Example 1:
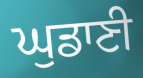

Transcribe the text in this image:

ਘੁਡਾਣੀ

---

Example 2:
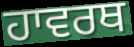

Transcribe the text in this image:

ਹਾਵਰਥ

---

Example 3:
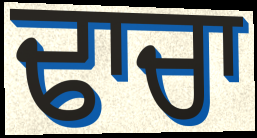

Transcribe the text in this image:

ਢਾਚਾ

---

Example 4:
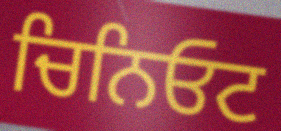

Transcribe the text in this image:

ਚਿਨਿਓਟ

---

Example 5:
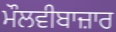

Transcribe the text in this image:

ਮੌਲਵੀਬਾਜ਼ਾਰ